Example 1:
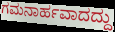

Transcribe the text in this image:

ಗಮನಾರ್ಹವಾದದ್ದು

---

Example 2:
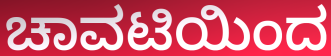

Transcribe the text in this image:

ಚಾವಟಿಯಿಂದ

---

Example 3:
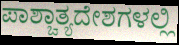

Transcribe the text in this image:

ಪಾಶ್ಚಾತ್ಯದೇಶಗಳಲ್ಲಿ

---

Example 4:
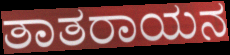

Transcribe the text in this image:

ತಾತರಾಯನ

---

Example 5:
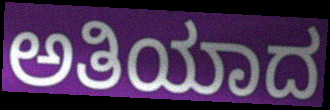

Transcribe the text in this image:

ಅತಿಯಾದ